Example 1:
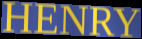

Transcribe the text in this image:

HENRY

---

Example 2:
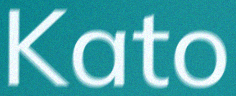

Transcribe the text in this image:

Kato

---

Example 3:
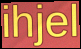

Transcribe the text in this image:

ihjel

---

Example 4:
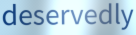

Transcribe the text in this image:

deservedly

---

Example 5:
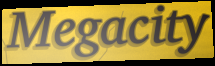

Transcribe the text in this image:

Megacity